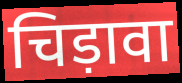
चिड़ावा